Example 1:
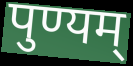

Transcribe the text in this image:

पुण्यम्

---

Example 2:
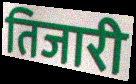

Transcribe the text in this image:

तिजारी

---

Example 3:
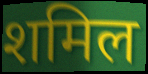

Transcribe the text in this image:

शमिल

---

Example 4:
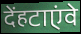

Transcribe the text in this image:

देंहटाएंवे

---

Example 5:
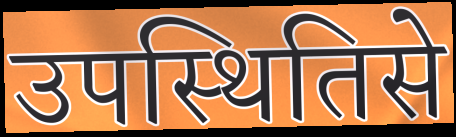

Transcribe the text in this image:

उपस्थितिसे